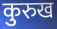
कुरुख